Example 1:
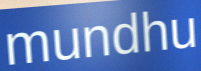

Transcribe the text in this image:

mundhu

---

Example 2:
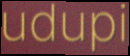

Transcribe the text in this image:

udupi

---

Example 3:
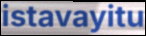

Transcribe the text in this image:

istavayitu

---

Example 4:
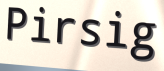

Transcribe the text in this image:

Pirsig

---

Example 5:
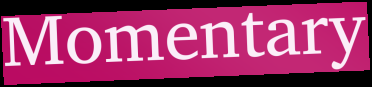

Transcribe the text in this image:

Momentary